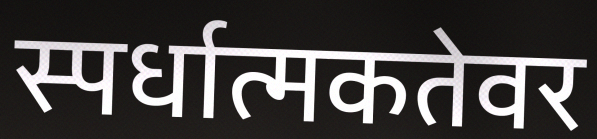
स्पर्धात्मकतेवर